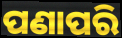
ପଣାପରି